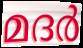
മദർ